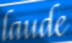
laude